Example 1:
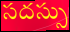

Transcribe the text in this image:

సదస్సు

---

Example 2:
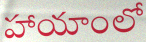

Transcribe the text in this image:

హాయాంలో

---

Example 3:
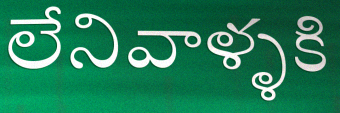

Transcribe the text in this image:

లేనివాళ్ళకి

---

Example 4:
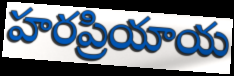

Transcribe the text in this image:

హరప్రియాయ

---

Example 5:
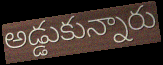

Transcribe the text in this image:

అడ్డుకున్నారు